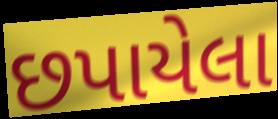
છપાયેલા